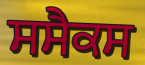
ਸਸੈਕਸ